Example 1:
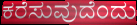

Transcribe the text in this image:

ಕರೆಸುವುದೆಂದು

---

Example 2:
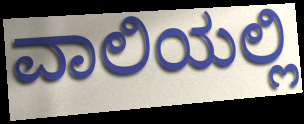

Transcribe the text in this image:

ವಾಲಿಯಲ್ಲಿ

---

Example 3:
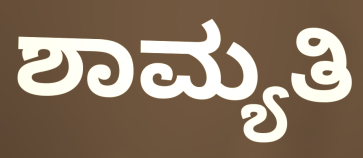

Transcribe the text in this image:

ಶಾಮ್ಯತಿ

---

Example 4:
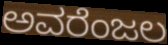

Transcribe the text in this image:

ಅವರೆಂಜಲ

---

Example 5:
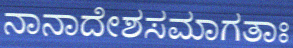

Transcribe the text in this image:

ನಾನಾದೇಶಸಮಾಗತಾಃ